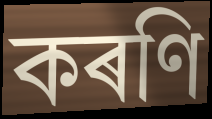
কৰণি